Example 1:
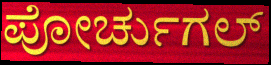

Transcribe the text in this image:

ಪೋರ್ಚುಗಲ್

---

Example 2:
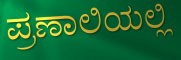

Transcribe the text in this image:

ಪ್ರಣಾಲಿಯಲ್ಲಿ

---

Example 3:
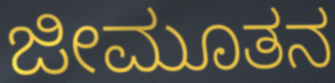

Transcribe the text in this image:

ಜೀಮೂತನ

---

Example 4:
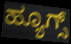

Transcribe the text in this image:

ಹ್ಯೂಗ್ಸ್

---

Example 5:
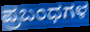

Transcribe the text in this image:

ಪ್ರಬಂಧಗಳ